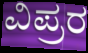
ವಿಪ್ರರ